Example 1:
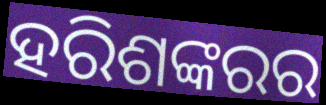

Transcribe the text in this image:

ହରିଶଙ୍କରର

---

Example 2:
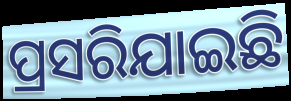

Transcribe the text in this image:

ପ୍ରସରିଯାଇଛି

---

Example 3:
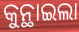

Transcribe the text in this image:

କୁନ୍ଥାଇଲା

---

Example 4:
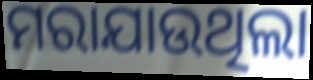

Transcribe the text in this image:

ମରାଯାଉଥିଲା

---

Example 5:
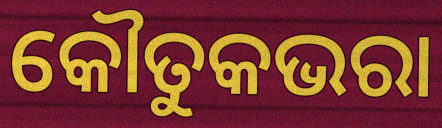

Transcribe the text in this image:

କୌତୁକଭରା